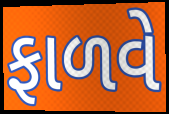
ફાળવે